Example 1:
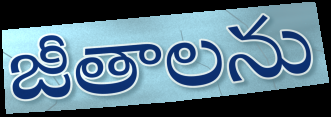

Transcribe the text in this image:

జీతాలను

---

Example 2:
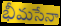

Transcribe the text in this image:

భీమసేనా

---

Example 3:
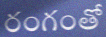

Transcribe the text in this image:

రంగంతో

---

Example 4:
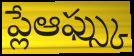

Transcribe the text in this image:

ప్లేఆఫ్స్కు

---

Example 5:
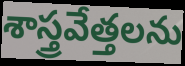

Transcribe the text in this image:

శాస్త్రవేత్తలను